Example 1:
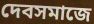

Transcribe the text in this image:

দেবসমাজে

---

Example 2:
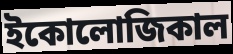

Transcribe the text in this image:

ইকোলোজিকাল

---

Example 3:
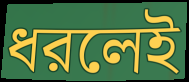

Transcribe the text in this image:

ধরলেই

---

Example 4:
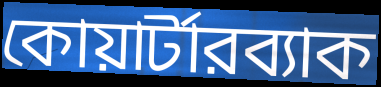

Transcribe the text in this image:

কোয়ার্টারব্যাক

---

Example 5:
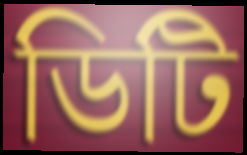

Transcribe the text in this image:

ডিটি